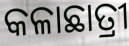
କଳାଛାତ୍ରୀ